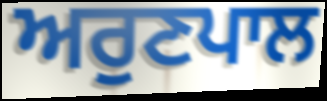
ਅਰੁਣਪਾਲ